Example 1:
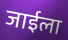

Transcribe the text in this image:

जाईला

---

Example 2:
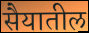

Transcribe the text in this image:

सैयातील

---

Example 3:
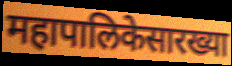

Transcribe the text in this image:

महापालिकेसारख्या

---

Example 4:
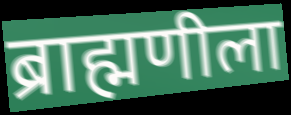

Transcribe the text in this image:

ब्राह्मणीला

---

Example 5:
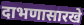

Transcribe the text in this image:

दाभणासारखे